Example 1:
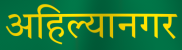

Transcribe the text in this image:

अहिल्यानगर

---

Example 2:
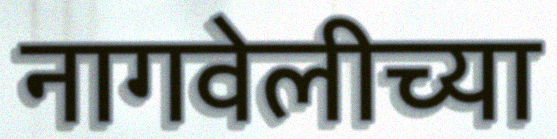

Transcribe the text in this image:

नागवेलीच्या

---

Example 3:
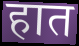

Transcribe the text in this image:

हात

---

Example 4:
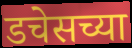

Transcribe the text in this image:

डचेसच्या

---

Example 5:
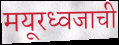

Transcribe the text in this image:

मयूरध्वजाची